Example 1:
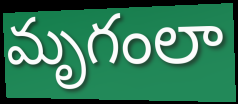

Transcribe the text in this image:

మృగంలా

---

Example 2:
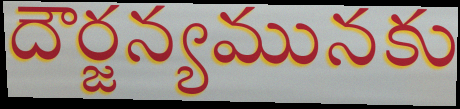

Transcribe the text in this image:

దౌర్జన్యమునకు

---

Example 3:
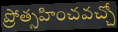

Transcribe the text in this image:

ప్రోత్సహించవచ్చో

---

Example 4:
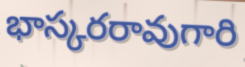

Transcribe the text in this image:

భాస్కరరావుగారి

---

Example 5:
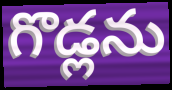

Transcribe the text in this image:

గొడ్లను